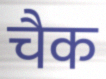
चैक